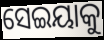
ସେଇୟାକୁ